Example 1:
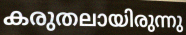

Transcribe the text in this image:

കരുതലായിരുന്നു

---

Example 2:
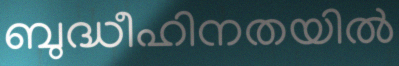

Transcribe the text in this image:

ബുദ്ധീഹിനതയിൽ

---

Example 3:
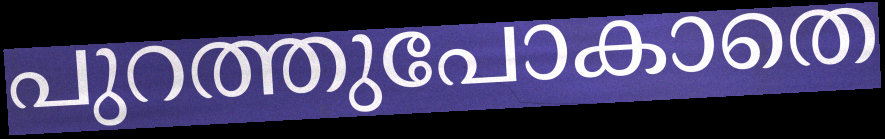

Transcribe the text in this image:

പുറത്തുപോകാതെ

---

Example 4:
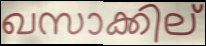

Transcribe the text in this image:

ഖസാക്കില്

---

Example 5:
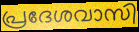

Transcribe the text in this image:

പ്രദേശവാസി